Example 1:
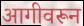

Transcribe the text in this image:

आगीवरून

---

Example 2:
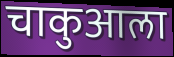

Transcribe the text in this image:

चाकुआला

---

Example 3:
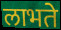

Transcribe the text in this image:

लाभते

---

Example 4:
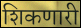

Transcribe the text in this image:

शिकणारी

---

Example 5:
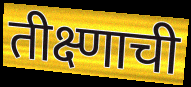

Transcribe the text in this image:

तीक्ष्णाची